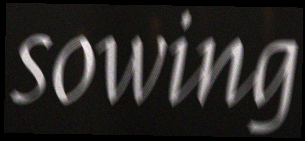
sowing